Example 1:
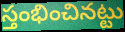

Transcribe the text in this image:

స్తంభించినట్టు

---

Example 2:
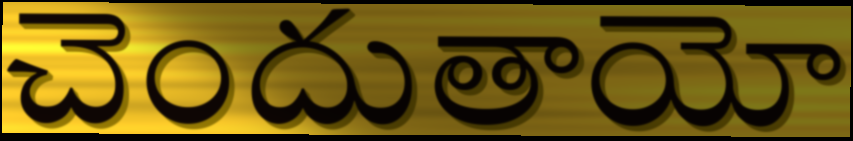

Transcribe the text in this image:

చెందుతాయో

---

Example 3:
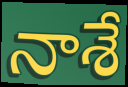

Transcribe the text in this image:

నాశే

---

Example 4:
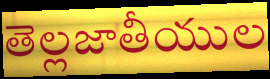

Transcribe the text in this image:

తెల్లజాతీయుల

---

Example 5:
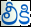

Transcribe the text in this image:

లీకి